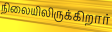
நிலையிலிருக்கிறார்